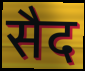
सैद